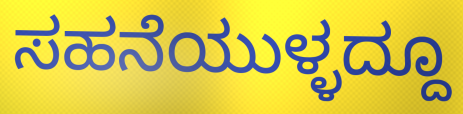
ಸಹನೆಯುಳ್ಳದ್ದೂ